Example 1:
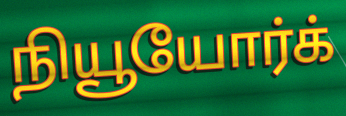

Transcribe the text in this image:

நியூயோர்க்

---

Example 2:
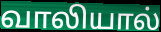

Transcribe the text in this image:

வாலியால்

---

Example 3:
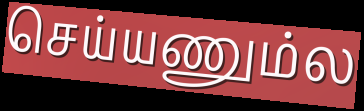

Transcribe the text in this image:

செய்யணும்ல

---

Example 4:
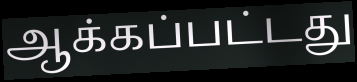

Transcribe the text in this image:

ஆக்கப்பட்டது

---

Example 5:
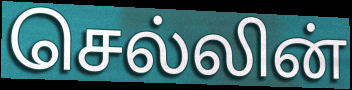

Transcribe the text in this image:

செல்லின்